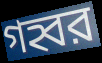
গহ্বর